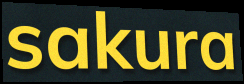
sakura